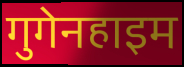
गुगेनहाइम